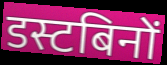
डस्टबिनों